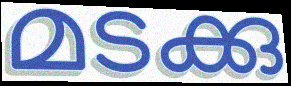
മടക്കു